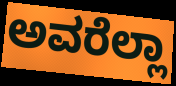
ಅವರೆಲ್ಲಾ